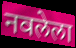
नवलेला